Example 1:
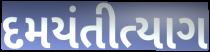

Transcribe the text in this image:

દમયંતીત્યાગ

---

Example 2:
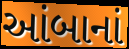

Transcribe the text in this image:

આંબાનાં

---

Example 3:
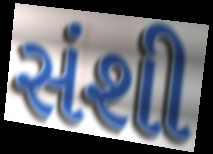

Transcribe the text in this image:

સંશી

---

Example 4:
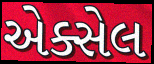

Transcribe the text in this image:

એક્સેલ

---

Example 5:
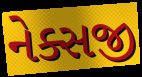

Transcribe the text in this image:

નેક્સજી